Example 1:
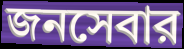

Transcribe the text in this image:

জনসেবার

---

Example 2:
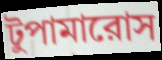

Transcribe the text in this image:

টুপামারোস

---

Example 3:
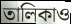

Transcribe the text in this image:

তালিকাও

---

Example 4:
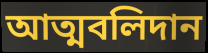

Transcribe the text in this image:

আত্মবলিদান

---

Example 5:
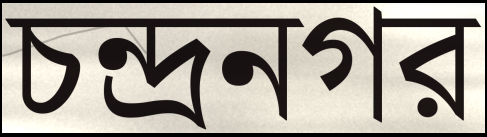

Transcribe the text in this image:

চন্দ্রনগর